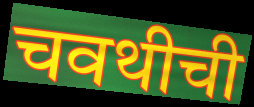
चवथीची